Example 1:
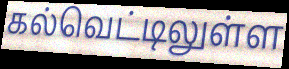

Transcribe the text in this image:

கல்வெட்டிலுள்ள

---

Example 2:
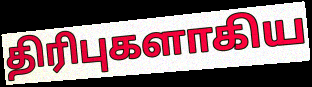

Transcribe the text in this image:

திரிபுகளாகிய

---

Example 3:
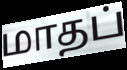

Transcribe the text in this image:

மாதப்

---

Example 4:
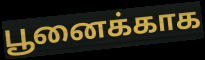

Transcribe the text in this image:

பூனைக்காக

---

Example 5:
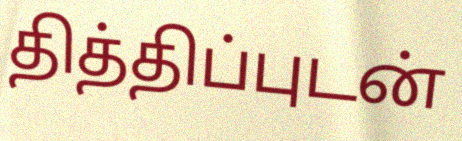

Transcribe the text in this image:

தித்திப்புடன்